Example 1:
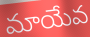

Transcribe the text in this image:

మాయేవ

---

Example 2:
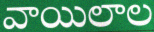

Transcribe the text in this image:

వాయిలాల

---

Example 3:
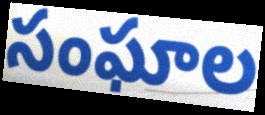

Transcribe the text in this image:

సంఘాల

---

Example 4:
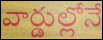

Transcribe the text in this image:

వార్డుల్లోనే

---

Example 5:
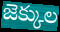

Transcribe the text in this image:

జెక్కుల